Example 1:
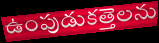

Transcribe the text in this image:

ఉంపుడుకత్తెలను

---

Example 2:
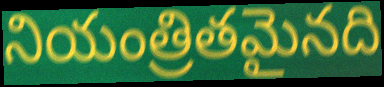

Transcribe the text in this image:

నియంత్రితమైనది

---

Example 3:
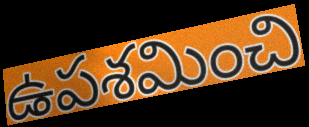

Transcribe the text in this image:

ఉపశమించి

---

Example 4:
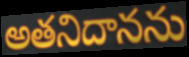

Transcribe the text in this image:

అతనిదానను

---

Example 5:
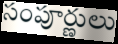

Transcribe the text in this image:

సంపూర్ణులు